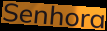
Senhora